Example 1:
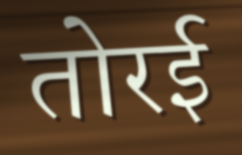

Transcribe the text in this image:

तोरई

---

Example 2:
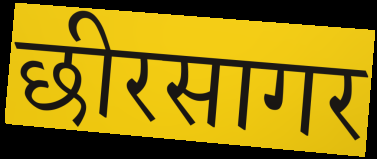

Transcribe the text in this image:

छीरसागर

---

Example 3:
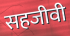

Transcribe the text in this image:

सहजीवी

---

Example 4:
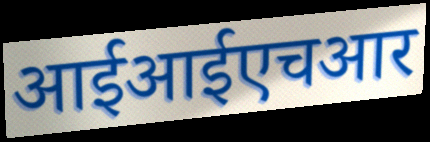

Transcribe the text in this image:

आईआईएचआर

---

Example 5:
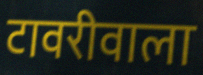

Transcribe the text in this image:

टावरीवाला